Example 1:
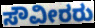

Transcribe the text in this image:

ಸೌವೀರರು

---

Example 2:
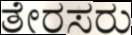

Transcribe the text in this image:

ತೇರಸರು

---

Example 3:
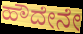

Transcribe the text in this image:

ಹೌದೇನೇ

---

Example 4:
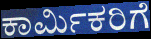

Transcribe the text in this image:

ಕಾರ್ಮಿಕರಿಗೆ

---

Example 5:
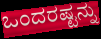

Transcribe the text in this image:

ಒಂದರಷ್ಟನ್ನು